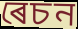
ৰেচন